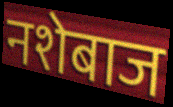
नशेबाज